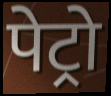
पेट्रो